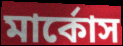
মার্কোস